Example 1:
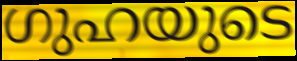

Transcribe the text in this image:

ഗുഹയുടെ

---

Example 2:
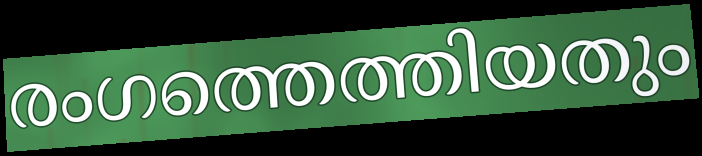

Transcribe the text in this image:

രംഗത്തെത്തിയതും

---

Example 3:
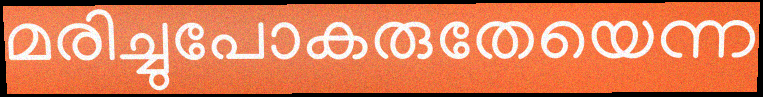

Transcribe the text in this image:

മരിച്ചുപോകരുതേയെന്ന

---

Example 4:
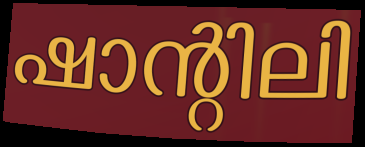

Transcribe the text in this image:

ഷാന്റിലി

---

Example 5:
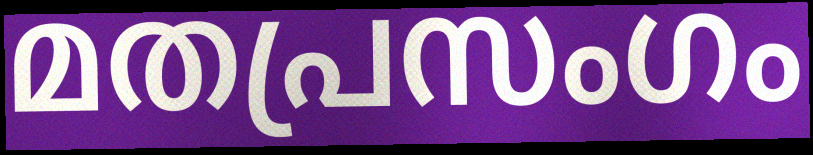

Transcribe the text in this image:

മതപ്രസംഗം